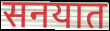
सनयात